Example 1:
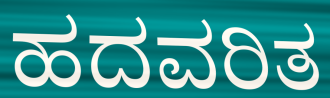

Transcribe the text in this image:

ಹದವರಿತ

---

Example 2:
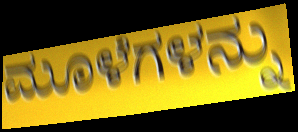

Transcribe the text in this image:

ಮೂಳೆಗಳನ್ನು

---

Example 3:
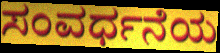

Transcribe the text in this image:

ಸಂವರ್ಧನೆಯ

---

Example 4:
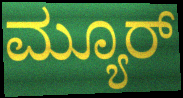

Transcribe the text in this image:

ಮ್ಯೂರ್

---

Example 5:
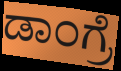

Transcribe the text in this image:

ಡಾಂಗ್ರೆ